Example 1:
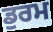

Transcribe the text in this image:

ਡੁਰਮ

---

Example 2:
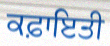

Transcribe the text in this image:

ਕਫ਼ਾਇਤੀ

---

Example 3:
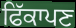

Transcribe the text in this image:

ਫਿੱਕਾਪਣ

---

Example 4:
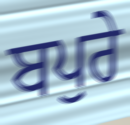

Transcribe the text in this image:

ਬਪੁਰੇ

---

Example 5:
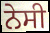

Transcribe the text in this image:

ਨੇਸੀ